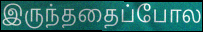
இருந்ததைப்போல